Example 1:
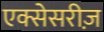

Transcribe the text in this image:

एक्सेसरीज़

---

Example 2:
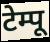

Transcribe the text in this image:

टेम्पू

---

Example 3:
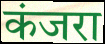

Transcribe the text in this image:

कंजरा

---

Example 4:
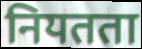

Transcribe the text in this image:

नियतता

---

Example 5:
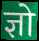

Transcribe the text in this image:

ज्ञो